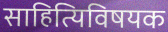
साहित्यिविषयक